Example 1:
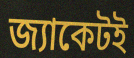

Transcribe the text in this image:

জ্যাকেটই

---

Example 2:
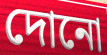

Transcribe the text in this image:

দোনো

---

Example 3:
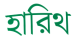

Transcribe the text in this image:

হারিথ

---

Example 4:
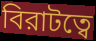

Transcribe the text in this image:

বিরাটত্বে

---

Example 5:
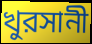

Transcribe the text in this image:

খুরসানী